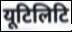
यूटिलिटि